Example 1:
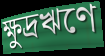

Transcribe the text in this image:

ক্ষুদ্রঋণে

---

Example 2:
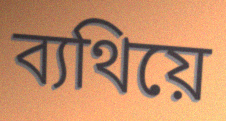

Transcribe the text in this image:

ব্যথিয়ে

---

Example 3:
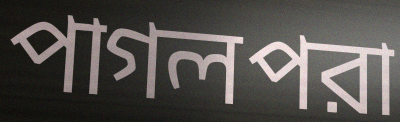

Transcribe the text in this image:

পাগলপরা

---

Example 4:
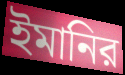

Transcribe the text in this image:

ইমানির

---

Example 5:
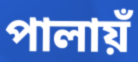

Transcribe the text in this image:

পালায়ঁ